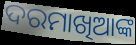
ଦରମାଖିଆଙ୍କ